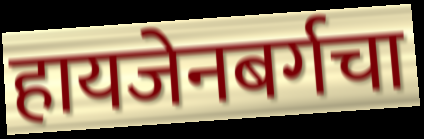
हायजेनबर्गचा